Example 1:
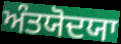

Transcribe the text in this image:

ਅੰਤਯੋਦਯਾ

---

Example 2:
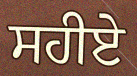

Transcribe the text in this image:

ਸਹੀਏ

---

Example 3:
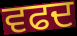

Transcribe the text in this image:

ਵਫਦ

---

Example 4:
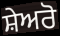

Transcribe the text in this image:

ਸ਼ੇਅਰੋ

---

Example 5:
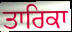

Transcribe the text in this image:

ਤਾਰਿਕਾ